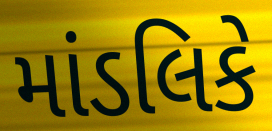
માંડલિકે